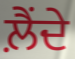
ਲ਼ੈਂਦੇ